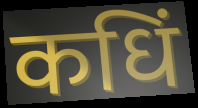
कधिं